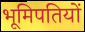
भूमिपतियों